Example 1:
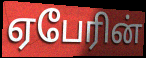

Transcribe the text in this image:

ஏபேரின்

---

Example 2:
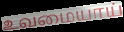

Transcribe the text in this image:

உவமையாய்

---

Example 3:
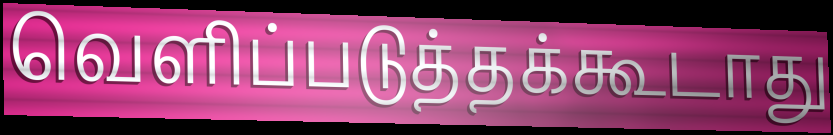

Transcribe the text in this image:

வெளிப்படுத்தக்கூடாது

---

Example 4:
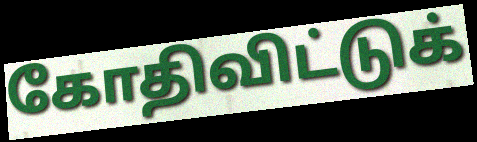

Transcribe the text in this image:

கோதிவிட்டுக்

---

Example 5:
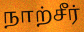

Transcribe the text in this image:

நாற்சீர்